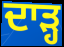
ਦਾੜ੍ਹ